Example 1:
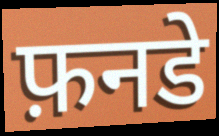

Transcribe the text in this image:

फ़नडे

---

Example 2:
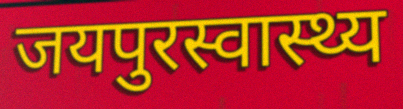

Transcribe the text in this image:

जयपुरस्वास्थ्य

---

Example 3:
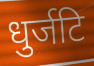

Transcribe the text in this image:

धुर्जटि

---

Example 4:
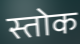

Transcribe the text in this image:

स्तोक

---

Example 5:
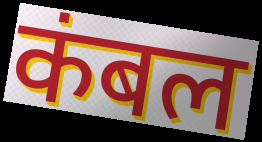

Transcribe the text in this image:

कंबल